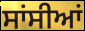
ਸਾਂਸੀਆਂ